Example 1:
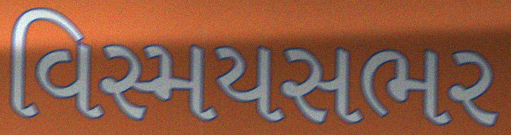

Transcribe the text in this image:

વિસ્મયસભર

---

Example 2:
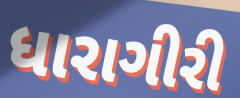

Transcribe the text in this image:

ધારાગીરી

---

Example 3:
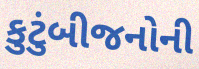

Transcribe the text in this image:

કુટુંબીજનોની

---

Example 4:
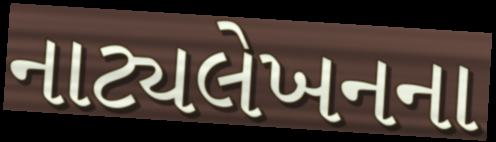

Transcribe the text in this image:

નાટ્યલેખનના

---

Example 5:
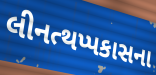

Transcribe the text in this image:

લીનત્થપ્પકાસના